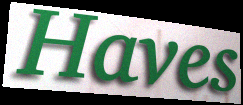
Haves